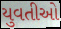
યુવતીઓ